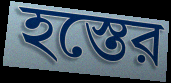
হস্তের